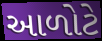
આળોટે